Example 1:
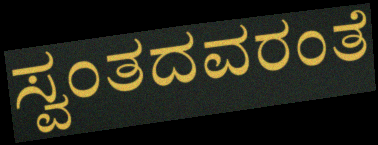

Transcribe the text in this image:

ಸ್ವಂತದವರಂತೆ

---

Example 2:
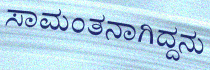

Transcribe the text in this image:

ಸಾಮಂತನಾಗಿದ್ದನು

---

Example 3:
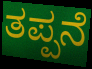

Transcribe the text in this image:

ತಪ್ಪನೆ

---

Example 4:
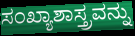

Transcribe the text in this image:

ಸಂಖ್ಯಾಶಾಸ್ತ್ರವನ್ನು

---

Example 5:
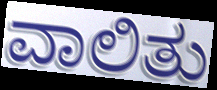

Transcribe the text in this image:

ವಾಲಿತು